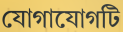
যোগাযোগটি